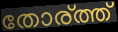
തോര്ത്ത്